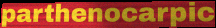
parthenocarpic